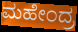
ಮಹೇಂದ್ರ